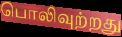
பொலிவுற்றது